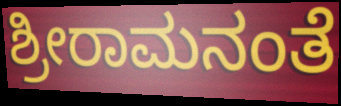
ಶ್ರೀರಾಮನಂತೆ